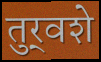
तुर्वशे